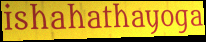
ishahathayoga